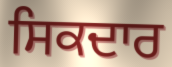
ਸਿਕਦਾਰ